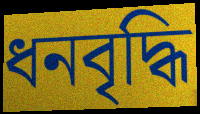
ধনবৃদ্ধি